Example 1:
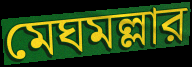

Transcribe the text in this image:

মেঘমল্লার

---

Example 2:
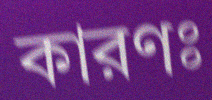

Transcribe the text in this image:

কারণঃ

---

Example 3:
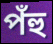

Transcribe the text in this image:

পঁহু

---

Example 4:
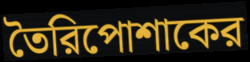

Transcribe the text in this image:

তৈরিপোশাকের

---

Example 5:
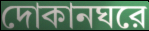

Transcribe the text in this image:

দোকানঘরে